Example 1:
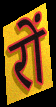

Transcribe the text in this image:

रों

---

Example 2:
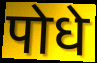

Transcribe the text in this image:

पोधे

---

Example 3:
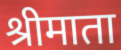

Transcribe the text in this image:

श्रीमाता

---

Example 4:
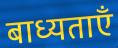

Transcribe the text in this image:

बाध्यताएँ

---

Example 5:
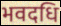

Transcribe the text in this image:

भवदधि